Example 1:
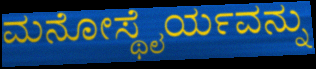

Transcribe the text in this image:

ಮನೋಸ್ಥೈರ್ಯವನ್ನು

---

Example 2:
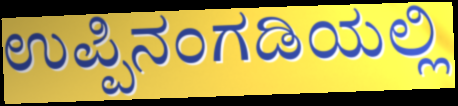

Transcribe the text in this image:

ಉಪ್ಪಿನಂಗಡಿಯಲ್ಲಿ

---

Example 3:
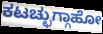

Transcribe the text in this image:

ಕಟಚ್ಛುಗ್ಗಾಹೋ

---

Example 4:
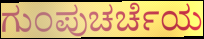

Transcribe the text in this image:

ಗುಂಪುಚರ್ಚೆಯ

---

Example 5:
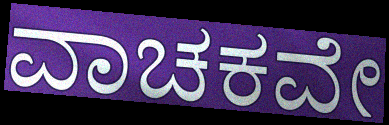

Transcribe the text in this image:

ವಾಚಕವೇ